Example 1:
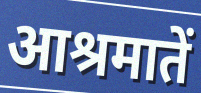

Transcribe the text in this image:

आश्रमातें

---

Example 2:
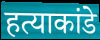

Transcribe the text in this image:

हत्याकांडे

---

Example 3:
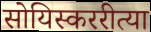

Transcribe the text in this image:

सोयिस्कररीत्या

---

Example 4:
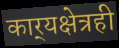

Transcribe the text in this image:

कार्यक्षेत्रही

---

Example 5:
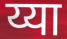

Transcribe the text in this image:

य्या